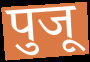
पुजू